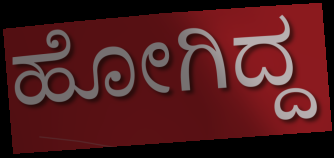
ಹೋಗಿದ್ದ